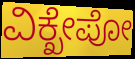
ವಿಕ್ಖೇಪೋ